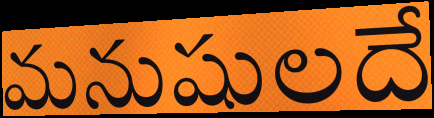
మనుషులదే